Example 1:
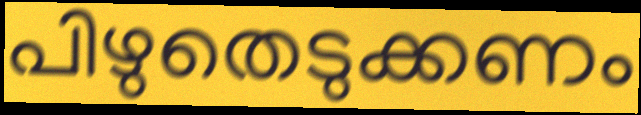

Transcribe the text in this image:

പിഴുതെടുക്കണം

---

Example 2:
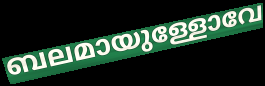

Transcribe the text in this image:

ബലമായുള്ളോവേ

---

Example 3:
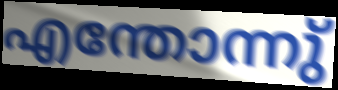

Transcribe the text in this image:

എന്തോന്നു്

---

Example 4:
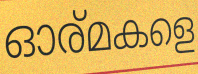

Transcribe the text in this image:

ഓര്മകളെ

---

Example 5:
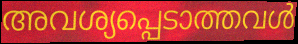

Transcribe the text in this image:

അവശ്യപ്പെടാത്തവൾ